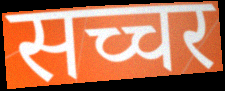
सच्चर